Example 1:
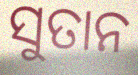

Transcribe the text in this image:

ସୁତାନ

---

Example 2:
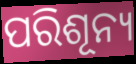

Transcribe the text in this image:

ପରିଶୂନ୍ୟ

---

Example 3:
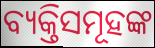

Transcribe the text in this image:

ବ୍ୟକ୍ତିସମୂହଙ୍କ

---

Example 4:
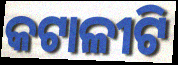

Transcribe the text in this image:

କଟାଳୀଟି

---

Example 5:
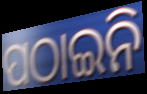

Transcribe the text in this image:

ପଠାଇନି